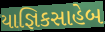
યાજ્ઞિકસાહેબ